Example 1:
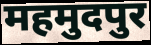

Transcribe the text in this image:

महमुदपुर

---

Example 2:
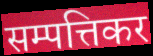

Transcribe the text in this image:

सम्पत्तिकर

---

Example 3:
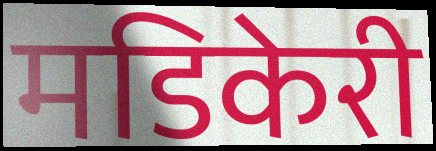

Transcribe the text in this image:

मडिकेरी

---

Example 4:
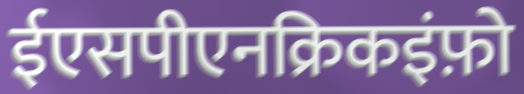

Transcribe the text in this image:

ईएसपीएनक्रिकइंफ़ो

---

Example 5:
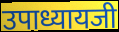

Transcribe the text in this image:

उपाध्यायजी